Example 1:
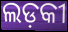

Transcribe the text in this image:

ଲଡ଼କୀ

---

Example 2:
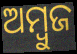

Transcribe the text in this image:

ଅମ୍ବୁଜ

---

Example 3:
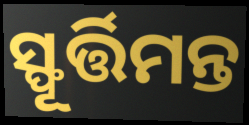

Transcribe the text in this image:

ସ୍ଫୂର୍ତ୍ତିମନ୍ତ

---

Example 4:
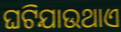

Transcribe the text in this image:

ଘଟିଯାଉଥାଏ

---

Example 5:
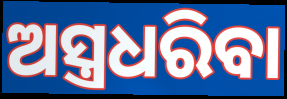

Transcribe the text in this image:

ଅସ୍ତ୍ରଧରିବା